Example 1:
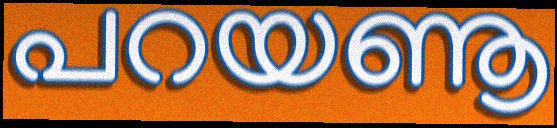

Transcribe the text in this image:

പറയണൂ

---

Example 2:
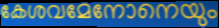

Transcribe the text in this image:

കേശവമേനോനെയും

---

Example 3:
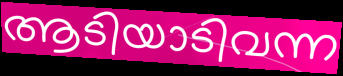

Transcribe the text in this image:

ആടിയാടിവന്ന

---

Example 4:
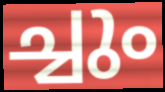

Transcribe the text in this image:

ച്ചും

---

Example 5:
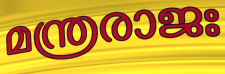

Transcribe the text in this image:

മന്ത്രരാജഃ